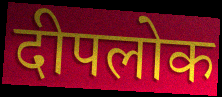
दीपलोक